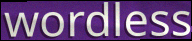
wordless